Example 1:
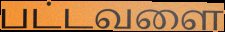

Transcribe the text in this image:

பட்டவளை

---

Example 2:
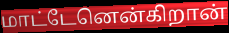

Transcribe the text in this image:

மாட்டேனென்கிறான்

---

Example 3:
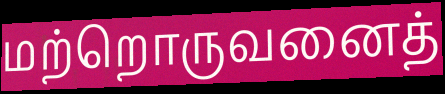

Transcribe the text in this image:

மற்றொருவனைத்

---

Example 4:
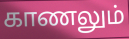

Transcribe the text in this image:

காணலும்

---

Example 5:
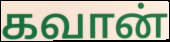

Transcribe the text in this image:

கவான்